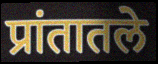
प्रांतातले